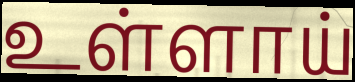
உள்ளாய்